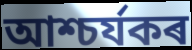
আশ্চৰ্যকৰ